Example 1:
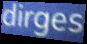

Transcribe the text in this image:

dirges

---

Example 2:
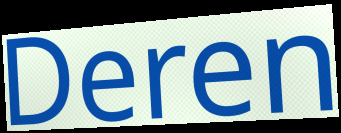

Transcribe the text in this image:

Deren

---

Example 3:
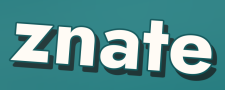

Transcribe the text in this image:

znate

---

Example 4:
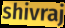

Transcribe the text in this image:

shivraj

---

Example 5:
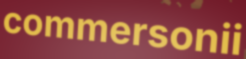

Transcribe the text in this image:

commersonii